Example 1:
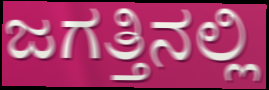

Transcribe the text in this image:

ಜಗತ್ತಿನಲ್ಲಿ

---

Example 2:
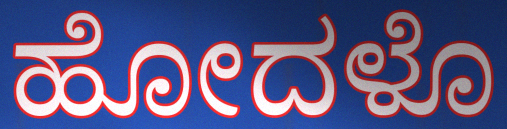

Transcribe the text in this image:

ಹೋದಳೊ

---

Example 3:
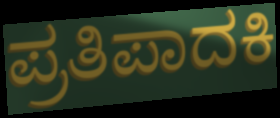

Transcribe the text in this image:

ಪ್ರತಿಪಾದಕಿ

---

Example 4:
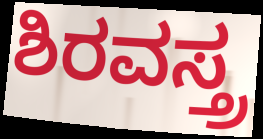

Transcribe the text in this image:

ಶಿರವಸ್ತ್ರ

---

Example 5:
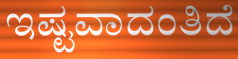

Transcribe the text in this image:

ಇಷ್ಟವಾದಂತಿದೆ